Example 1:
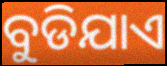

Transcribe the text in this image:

ବୁଡିଯାଏ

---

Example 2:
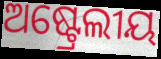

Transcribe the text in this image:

ଅଷ୍ଟ୍ରେଲୀୟ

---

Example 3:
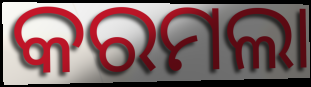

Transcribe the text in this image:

କରମଲା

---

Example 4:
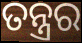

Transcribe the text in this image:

ତନ୍ତ୍ରର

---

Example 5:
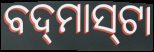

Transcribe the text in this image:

ବଦ୍‌ମାସ୍‌ଟା